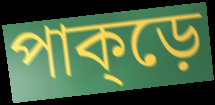
পাক্ড়ে